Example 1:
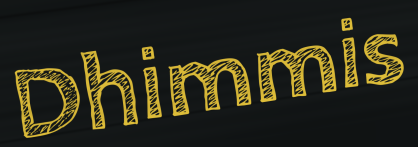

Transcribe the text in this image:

Dhimmis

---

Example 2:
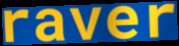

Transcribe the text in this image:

raver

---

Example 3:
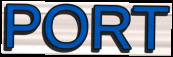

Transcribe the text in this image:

PORT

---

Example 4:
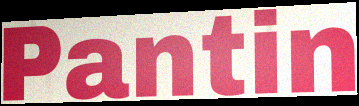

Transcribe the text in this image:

Pantin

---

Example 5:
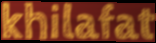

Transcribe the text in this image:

khilafat